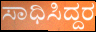
ಸಾಧಿಸಿದ್ದರ